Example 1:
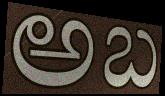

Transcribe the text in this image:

అబ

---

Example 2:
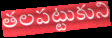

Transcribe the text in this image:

తలపట్టుకుని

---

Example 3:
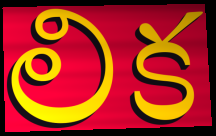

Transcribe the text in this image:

లిక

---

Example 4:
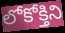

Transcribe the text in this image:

లోకోక్తిని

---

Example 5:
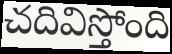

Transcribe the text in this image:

చదివిస్తోంది